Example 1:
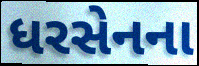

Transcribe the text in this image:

ધરસેનના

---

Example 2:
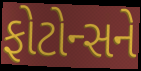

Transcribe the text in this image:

ફોટોન્સને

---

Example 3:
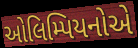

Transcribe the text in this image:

ઓલિમ્પિયનોએ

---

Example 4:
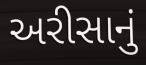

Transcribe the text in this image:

અરીસાનું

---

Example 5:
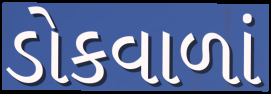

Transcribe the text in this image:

ડોકવાળાં